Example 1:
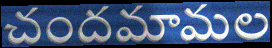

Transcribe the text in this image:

చందమామల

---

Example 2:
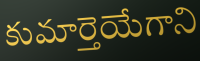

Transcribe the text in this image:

కుమార్తెయేగాని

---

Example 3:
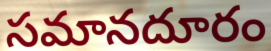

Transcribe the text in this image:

సమానదూరం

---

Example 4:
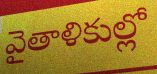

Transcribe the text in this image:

వైతాళికుల్లో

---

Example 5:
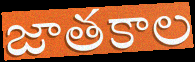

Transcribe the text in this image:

జాతకాల